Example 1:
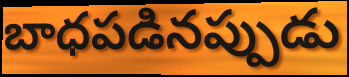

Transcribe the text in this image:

బాధపడినప్పుడు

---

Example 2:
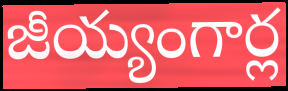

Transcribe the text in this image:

జీయ్యంగార్ల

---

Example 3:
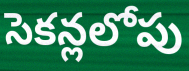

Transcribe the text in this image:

సెకన్లలోపు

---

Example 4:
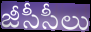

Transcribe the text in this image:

జీసీసీలు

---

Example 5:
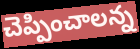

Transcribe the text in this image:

చెప్పించాలన్న